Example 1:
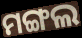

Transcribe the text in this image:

ମଙ୍ଗଲ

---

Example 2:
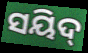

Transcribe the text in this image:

ସୟିଦ୍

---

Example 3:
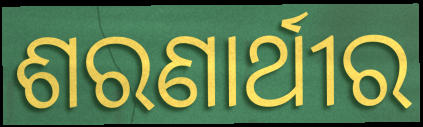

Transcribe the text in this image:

ଶରଣାର୍ଥୀର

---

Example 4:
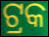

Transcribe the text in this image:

ଟ୍ରକ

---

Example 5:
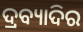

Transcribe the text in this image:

ଦ୍ରବ୍ୟାଦିର